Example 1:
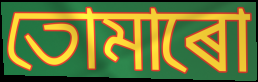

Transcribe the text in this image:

তোমাৰো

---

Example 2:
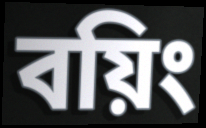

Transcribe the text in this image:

বয়িং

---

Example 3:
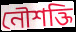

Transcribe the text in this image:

নৌশক্তি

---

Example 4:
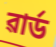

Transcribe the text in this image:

ৱাৰ্ড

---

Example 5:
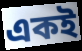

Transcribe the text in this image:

একই